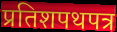
प्रतिशपथपत्र